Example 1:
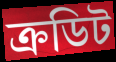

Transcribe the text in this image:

ক্রডিট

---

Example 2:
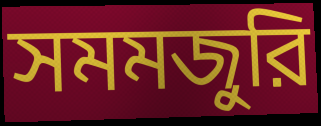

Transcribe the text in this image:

সমমজুরি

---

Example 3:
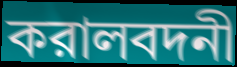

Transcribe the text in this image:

করালবদনী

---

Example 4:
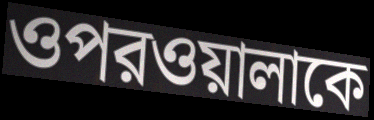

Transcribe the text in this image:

ওপরওয়ালাকে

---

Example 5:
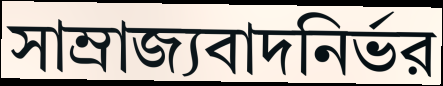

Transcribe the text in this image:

সাম্রাজ্যবাদনির্ভর